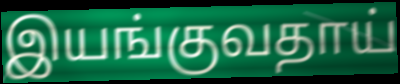
இயங்குவதாய்